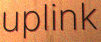
uplink